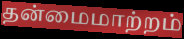
தன்மைமாற்றம்